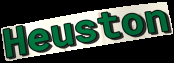
Heuston